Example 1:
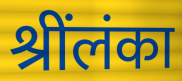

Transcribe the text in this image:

श्रींलंका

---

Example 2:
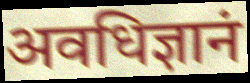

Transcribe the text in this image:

अवधिज्ञानं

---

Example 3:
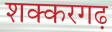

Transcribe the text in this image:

शक्करगढ़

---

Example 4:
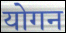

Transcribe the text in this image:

योगन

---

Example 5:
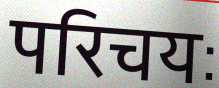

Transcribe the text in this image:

परिचयः